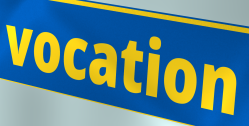
vocation